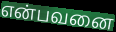
என்பவனை